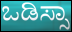
ಒಡಿಸ್ಸಾ